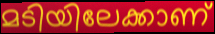
മടിയിലേക്കാണ്